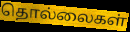
தொல்லைகள்